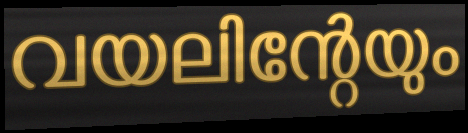
വയലിന്റേയും